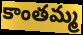
కాంతమ్మ